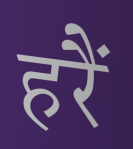
हरैं